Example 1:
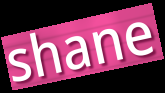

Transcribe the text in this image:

shane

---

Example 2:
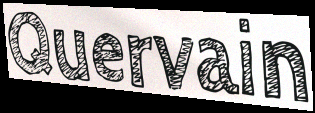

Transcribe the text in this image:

Quervain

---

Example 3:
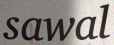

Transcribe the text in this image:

sawal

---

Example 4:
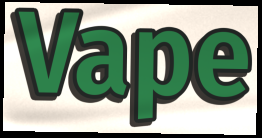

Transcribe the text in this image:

Vape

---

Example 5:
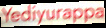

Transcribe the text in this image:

Yediyurappa